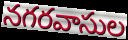
నగరవాసుల